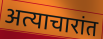
अत्याचारांत